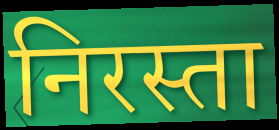
निरस्ता